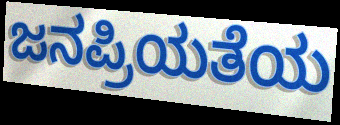
ಜನಪ್ರಿಯತೆಯ